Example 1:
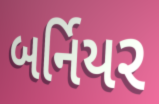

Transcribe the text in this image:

બર્નિયર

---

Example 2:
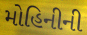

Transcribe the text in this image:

મોહિનીની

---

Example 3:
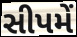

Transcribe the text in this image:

સીપમેં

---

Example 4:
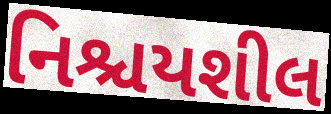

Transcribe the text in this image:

નિશ્ચયશીલ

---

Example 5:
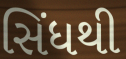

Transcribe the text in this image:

સિંધથી